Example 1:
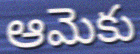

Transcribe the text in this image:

ఆమెకు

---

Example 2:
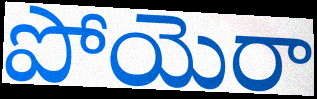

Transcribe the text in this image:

పోయెరా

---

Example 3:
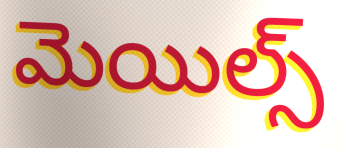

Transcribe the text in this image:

మెయిల్స్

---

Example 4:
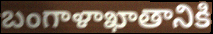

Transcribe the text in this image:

బంగాళాఖాతానికి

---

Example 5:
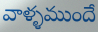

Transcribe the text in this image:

వాళ్ళముందే